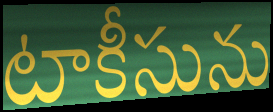
టాకీసును